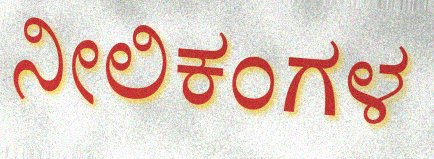
ನೀಲಿಕಂಗಳ